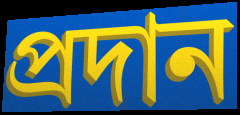
প্রদান